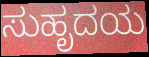
ಸುಹೃದಯ